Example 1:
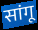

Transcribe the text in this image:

सांगू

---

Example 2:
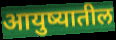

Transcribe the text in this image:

आयुष्यातील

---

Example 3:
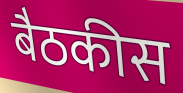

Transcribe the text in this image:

बैठकीस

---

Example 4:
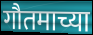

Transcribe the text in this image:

गौतमाच्या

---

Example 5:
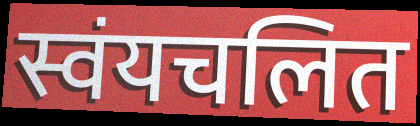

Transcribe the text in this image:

स्वंयचलित